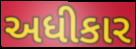
અધીકાર